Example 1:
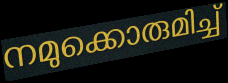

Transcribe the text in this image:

നമുക്കൊരുമിച്ച്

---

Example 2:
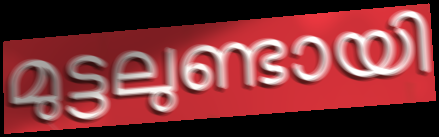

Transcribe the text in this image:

മുട്ടലുണ്ടായി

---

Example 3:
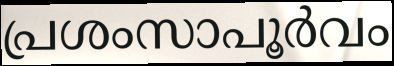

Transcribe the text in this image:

പ്രശംസാപൂർവം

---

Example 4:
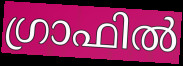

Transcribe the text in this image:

ഗ്രാഫിൽ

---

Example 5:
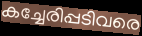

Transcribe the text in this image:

കച്ചേരിപ്പടിവരെ